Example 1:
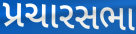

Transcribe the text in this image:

પ્રચારસભા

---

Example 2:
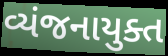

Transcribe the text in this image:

વ્યંજનાયુક્ત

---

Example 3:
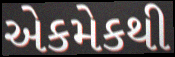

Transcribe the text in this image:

એકમેકથી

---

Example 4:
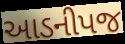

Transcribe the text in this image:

આડનીપજ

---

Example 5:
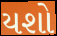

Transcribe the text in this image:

યશો